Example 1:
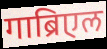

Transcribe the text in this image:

गाब्रिएल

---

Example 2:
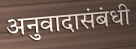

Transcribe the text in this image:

अनुवादासंबंधी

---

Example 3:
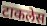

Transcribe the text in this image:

टाकलेस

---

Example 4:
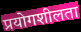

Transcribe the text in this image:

प्रयोगशीलता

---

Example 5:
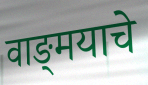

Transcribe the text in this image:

वाङ्‍मयाचे